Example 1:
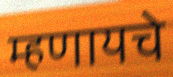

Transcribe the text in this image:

म्हणायचे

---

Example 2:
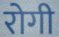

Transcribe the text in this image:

रोगी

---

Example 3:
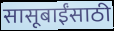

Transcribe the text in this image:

सासूबाईंसाठी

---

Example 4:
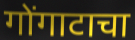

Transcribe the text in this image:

गोंगाटाचा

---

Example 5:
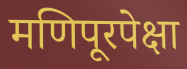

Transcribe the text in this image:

मणिपूरपेक्षा